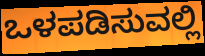
ಒಳಪಡಿಸುವಲ್ಲಿ